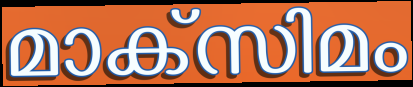
മാക്‌സിമം